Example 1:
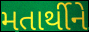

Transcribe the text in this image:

મતાર્થીને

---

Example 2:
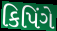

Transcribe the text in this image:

કિપિંગે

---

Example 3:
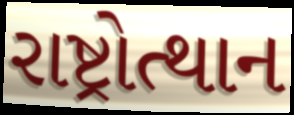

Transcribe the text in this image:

રાષ્ટ્રોત્થાન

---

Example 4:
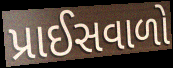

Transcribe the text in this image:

પ્રાઈસવાળો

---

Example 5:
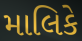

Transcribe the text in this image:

માલિકે